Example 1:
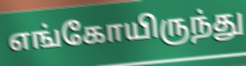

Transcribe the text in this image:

எங்கோயிருந்து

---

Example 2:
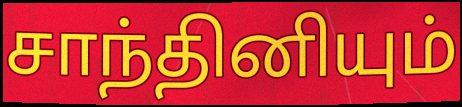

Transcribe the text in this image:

சாந்தினியும்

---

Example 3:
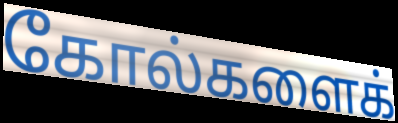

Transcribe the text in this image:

கோல்களைக்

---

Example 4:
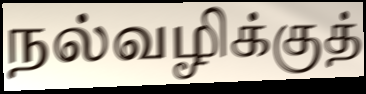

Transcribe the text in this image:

நல்வழிக்குத்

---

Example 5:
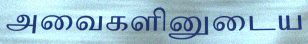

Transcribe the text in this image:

அவைகளினுடைய